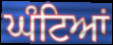
ਘੰਟਿਆਂ